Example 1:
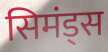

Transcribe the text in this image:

सिमंड्स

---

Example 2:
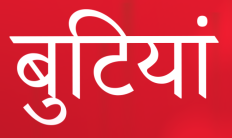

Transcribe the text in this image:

बुटियां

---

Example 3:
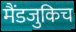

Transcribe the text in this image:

मैंडजुकिच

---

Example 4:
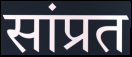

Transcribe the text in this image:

सांप्रत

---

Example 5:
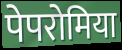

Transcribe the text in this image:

पेपरोमिया